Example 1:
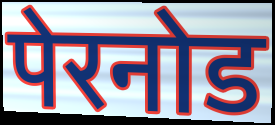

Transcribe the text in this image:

पेरनोड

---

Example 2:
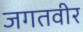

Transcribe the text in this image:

जगतवीर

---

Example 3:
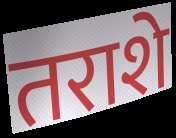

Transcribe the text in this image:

तराशे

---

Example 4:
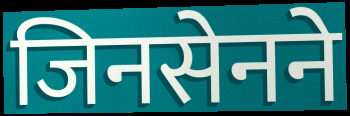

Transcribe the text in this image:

जिनसेनने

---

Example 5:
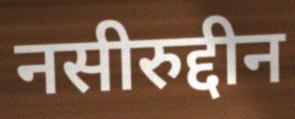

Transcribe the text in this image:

नसीरुद्दीन